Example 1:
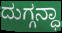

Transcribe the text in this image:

ದುಗ್ಗನ್ಧಾ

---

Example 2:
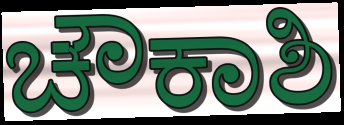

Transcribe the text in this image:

ಚೌಕಾಶಿ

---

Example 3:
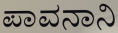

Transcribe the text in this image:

ಪಾವನಾನಿ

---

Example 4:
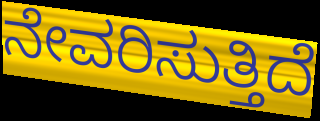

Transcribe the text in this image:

ನೇವರಿಸುತ್ತಿದೆ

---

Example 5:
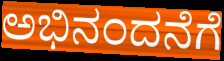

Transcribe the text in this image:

ಅಭಿನಂದನೆಗೆ